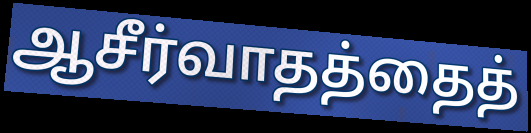
ஆசீர்வாதத்தைத்